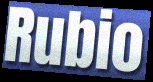
Rubio